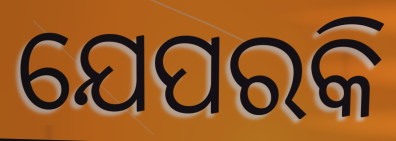
ଯେପରକି